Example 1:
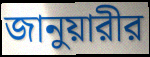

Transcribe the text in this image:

জানুয়ারীর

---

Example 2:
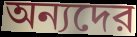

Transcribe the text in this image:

অন্যদের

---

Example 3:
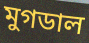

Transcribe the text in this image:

মুগডাল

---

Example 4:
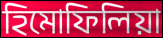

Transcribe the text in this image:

হিমোফিলিয়া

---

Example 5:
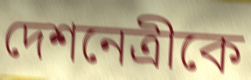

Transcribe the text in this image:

দেশনেত্রীকে